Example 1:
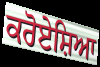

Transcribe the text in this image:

ਕਰੋਏਸ਼ਿਆ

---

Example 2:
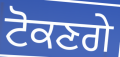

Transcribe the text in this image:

ਟੋਕਣਗੇ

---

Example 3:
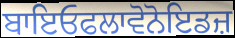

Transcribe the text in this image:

ਬਾਇਓਫਲਾਵੋਨੋਇਡਜ਼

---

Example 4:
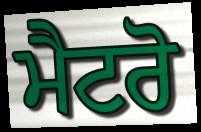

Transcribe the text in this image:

ਮੈਟਰੋ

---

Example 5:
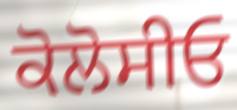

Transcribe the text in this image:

ਕੋਲੋਸੀਓ